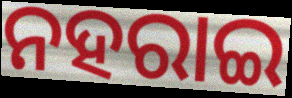
ନହରାଇ